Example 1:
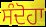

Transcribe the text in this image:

ਸੰਦੋਹਾ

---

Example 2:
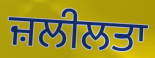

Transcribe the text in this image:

ਜ਼ਲੀਲਤਾ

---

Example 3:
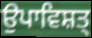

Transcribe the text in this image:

ਉਪਾਵਿਸ਼ਤ੍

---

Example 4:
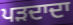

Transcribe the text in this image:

ਪੜਦਾਦਾ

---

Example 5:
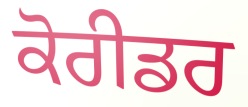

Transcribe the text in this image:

ਕੋਰੀਡਰ